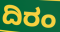
ದಿರಂ